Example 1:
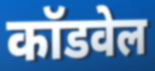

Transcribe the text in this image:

कॉडवेल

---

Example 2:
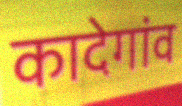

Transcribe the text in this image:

कादेगांव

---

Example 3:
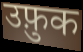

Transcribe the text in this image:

उफ़ुक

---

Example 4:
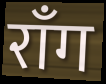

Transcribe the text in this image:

रॉंग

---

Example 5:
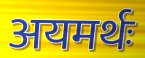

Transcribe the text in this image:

अयमर्थः